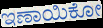
ಇಣಾಯಿಕೋ